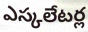
ఎస్కలేటర్ల